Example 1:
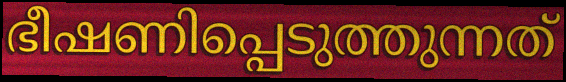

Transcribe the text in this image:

ഭീഷണിപ്പെടുത്തുന്നത്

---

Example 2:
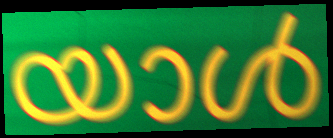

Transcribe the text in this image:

യാൾ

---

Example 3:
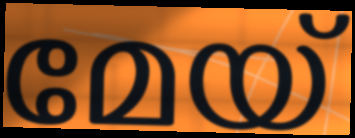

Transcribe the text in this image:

മേയ്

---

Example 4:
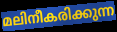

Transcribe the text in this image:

മലിനീകരിക്കുന്ന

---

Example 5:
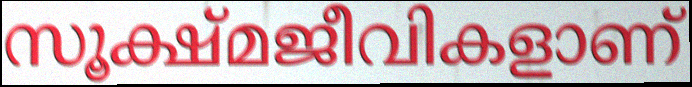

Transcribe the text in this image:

സൂക്ഷ്മജീവികളാണ്